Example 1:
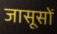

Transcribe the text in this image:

जासूसों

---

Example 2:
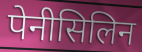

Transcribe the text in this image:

पेनीसिलिन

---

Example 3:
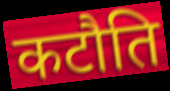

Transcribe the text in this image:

कटौति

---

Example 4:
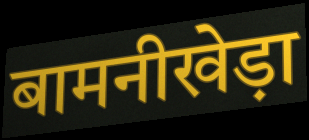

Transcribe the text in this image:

बामनीखेड़ा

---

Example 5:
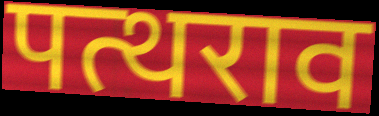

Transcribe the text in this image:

पत्थराव